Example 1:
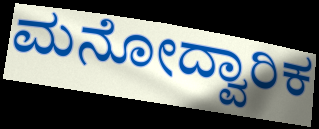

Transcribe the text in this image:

ಮನೋದ್ವಾರಿಕ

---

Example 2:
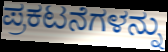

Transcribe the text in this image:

ಪ್ರಕಟನೆಗಳನ್ನು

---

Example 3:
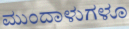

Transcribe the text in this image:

ಮುಂದಾಳುಗಳೂ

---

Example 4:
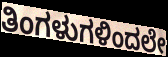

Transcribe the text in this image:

ತಿಂಗಳುಗಳಿಂದಲೇ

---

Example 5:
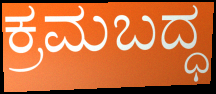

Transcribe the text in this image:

ಕ್ರಮಬದ್ಧ